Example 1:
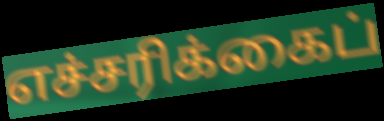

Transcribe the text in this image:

எச்சரிக்கைப்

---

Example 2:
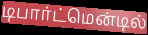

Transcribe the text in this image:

டிபார்ட்மென்டில்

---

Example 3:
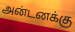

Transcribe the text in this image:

அன்டனக்கு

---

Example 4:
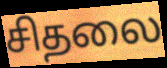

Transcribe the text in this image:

சிதலை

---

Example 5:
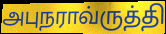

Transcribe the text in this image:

அபுநராவ்ருத்தி